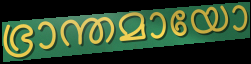
ഭ്രാന്തമായോ